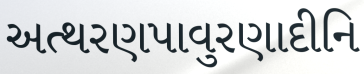
અત્થરણપાવુરણાદીનિ